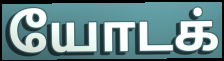
யோடக்